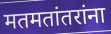
मतमतांतरांना